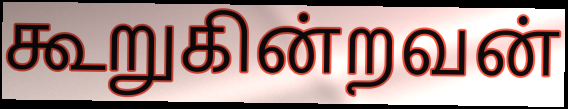
கூறுகின்றவன்